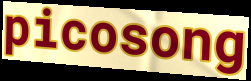
picosong